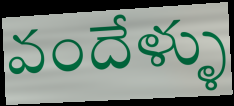
వందేళ్ళు